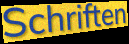
Schriften